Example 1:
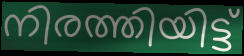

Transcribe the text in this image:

നിരത്തിയിട്ട്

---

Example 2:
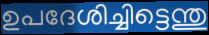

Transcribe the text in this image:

ഉപദേശിച്ചിട്ടെന്തു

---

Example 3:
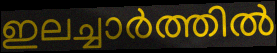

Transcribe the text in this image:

ഇലച്ചാർത്തിൽ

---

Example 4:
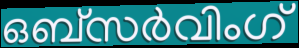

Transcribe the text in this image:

ഒബ്സർവിംഗ്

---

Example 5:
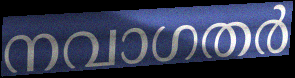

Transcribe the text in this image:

നവാഗതർ